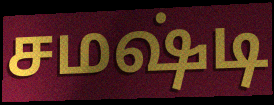
சமஷ்டி